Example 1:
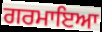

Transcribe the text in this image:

ਗਰਮਾਇਆ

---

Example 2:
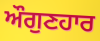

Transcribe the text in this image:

ਔਗੁਣਹਾਰ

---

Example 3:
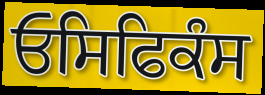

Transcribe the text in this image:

ਓਸਿਫਿਕੰਸ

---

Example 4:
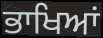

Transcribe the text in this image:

ਭਾਖਿਆਂ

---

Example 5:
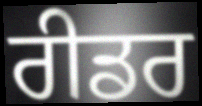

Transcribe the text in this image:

ਰੀਡਰ